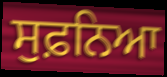
ਸੁਫ਼ਨਿਆ